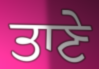
ਤਾਣੇ